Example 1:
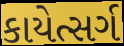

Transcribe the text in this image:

કાયેત્સર્ગ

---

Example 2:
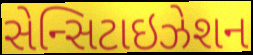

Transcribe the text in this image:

સેન્સિટાઇઝેશન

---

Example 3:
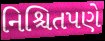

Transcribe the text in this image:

નિશ્ચિતપણે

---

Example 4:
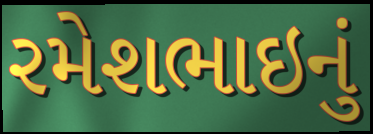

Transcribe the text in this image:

રમેશભાઇનું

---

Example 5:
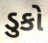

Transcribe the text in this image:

ડુકો